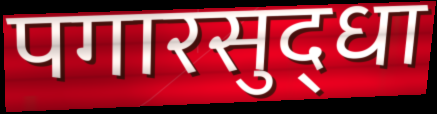
पगारसुद्धा